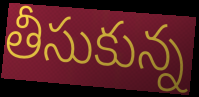
తీసుకున్న